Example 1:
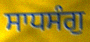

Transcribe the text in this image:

ਸਾਧਸੰਗੁ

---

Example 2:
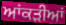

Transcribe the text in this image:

ਆਂਕੜੀਆਂ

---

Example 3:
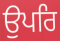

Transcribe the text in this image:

ਉਪਰਿ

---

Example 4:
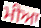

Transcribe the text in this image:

ਮੀਆ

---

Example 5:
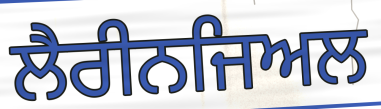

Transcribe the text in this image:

ਲੈਰੀਨਜਿਅਲ